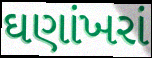
ઘણાંખરાં